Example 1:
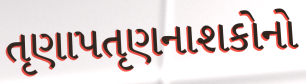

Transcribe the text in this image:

તૃણાપતૃણનાશકોનો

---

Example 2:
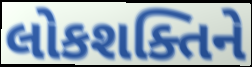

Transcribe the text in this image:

લોકશક્તિને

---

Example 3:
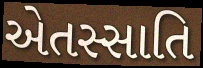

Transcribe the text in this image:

એતસ્સાતિ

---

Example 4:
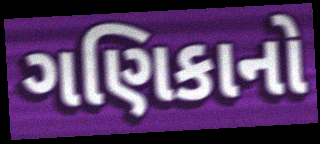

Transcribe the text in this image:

ગણિકાનો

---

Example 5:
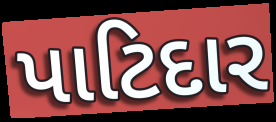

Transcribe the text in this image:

પાટિદાર